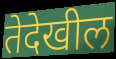
तेदेखील